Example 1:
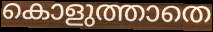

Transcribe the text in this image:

കൊളുത്താതെ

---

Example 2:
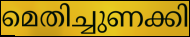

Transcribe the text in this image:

മെതിച്ചുണക്കി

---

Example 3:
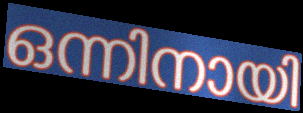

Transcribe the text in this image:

ഒന്നിനായി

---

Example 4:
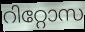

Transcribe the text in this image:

റിറ്റോസ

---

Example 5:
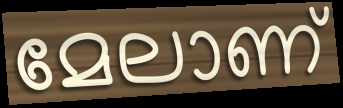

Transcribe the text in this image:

മേലാണ്